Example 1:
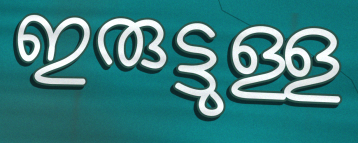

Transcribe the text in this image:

ഇരുട്ടുള്ള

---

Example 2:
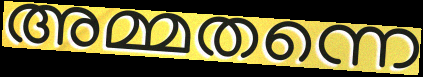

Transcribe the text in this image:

അമ്മതന്നെ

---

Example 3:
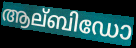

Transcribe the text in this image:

ആല്ബിഡോ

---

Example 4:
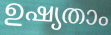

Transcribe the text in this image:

ഉഷ്യതാം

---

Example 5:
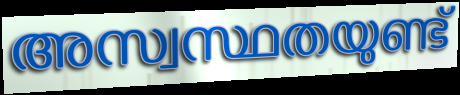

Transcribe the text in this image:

അസ്വസ്ഥതയുണ്ട്